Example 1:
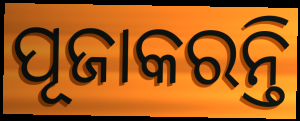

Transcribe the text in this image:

ପୂଜାକରନ୍ତି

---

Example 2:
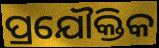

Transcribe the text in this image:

ପ୍ରଯୌକ୍ତିକ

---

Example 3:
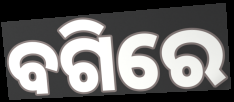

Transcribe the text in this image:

ବଗିରେ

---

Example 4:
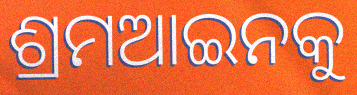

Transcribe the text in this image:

ଶ୍ରମଆଇନକୁ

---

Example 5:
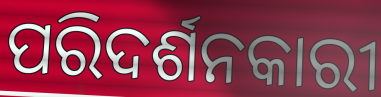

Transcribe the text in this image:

ପରିଦର୍ଶନକାରୀ